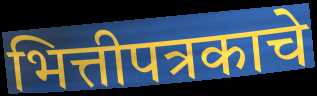
भित्तीपत्रकाचे